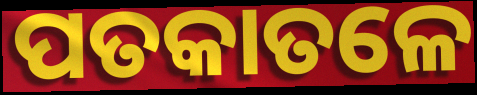
ପତକାତଳେ